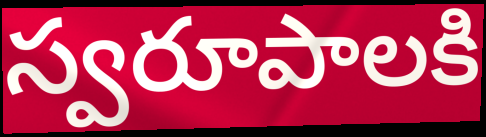
స్వరూపాలకి